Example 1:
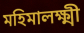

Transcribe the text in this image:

মহিমালক্ষ্মী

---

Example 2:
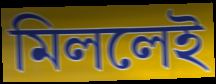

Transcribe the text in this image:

মিললেই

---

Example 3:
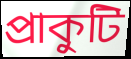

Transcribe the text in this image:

প্রাকুটি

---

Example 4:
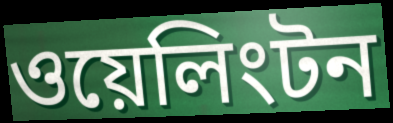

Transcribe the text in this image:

ওয়েলিংটন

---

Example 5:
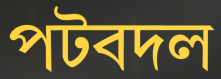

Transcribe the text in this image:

পটবদল